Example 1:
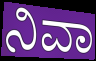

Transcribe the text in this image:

ನಿವಾ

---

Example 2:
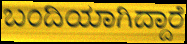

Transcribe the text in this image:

ಬಂದಿಯಾಗಿದ್ದಾರೆ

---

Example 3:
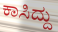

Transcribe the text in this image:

ಕಾಸಿದ್ದು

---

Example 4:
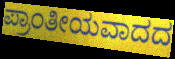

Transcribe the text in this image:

ಪ್ರಾಂತೀಯವಾದದ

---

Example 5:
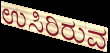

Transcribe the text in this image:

ಉಸಿರಿರುವ